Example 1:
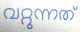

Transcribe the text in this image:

വറ്റുന്നത്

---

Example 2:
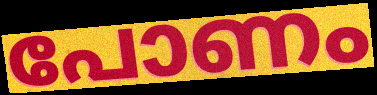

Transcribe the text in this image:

പോണം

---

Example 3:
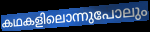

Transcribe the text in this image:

കഥകളിലൊന്നുപോലും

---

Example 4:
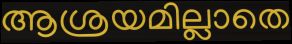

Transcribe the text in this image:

ആശ്രയമില്ലാതെ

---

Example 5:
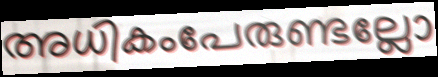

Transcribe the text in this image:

അധികംപേരുണ്ടല്ലോ